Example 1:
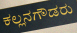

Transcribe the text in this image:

ಕಲ್ಲನಗೌಡರು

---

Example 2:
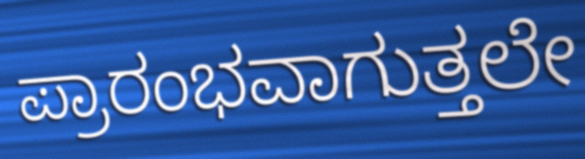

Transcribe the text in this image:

ಪ್ರಾರಂಭವಾಗುತ್ತಲೇ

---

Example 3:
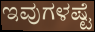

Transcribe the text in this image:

ಇವುಗಳಷ್ಟೆ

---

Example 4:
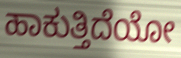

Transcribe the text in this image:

ಹಾಕುತ್ತಿದೆಯೋ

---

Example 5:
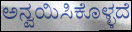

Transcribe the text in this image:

ಅನ್ವಯಿಸಿಕೊಳ್ಳದೆ